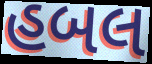
હબલ